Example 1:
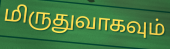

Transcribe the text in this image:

மிருதுவாகவும்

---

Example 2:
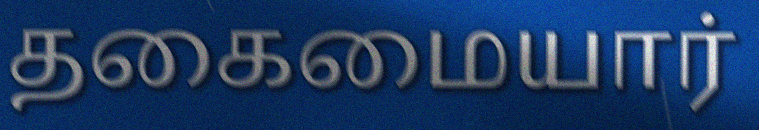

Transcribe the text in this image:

தகைமையார்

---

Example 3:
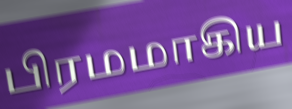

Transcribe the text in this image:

பிரமமாகிய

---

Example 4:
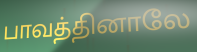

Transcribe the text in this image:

பாவத்தினாலே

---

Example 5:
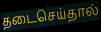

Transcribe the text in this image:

தடைசெய்தால்